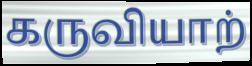
கருவியாற்